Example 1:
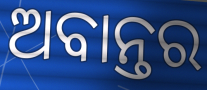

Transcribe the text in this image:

ଅବାନ୍ତର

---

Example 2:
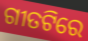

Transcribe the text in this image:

ଗୀତଟିରେ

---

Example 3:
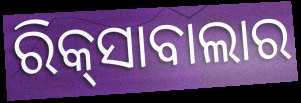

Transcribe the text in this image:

ରିକ୍‌ସାବାଲାର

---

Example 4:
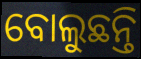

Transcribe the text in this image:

ବୋଲୁଛନ୍ତି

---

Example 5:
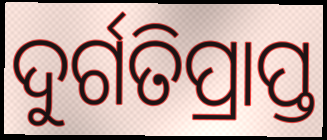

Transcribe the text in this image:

ଦୁର୍ଗତିପ୍ରାପ୍ତ